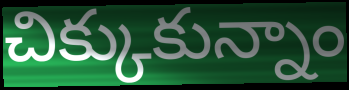
చిక్కుకున్నాం